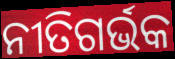
ନୀତିଗର୍ଭକ